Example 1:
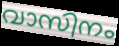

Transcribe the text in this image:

വാസിനം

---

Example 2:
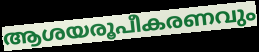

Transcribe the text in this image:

ആശയരൂപീകരണവും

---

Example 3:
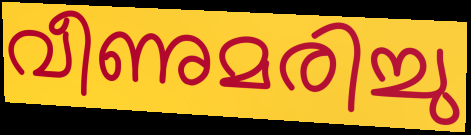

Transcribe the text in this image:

വീണുമരിച്ചു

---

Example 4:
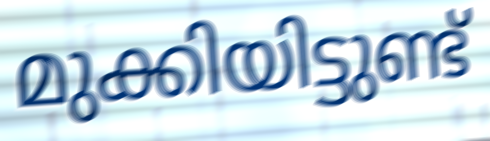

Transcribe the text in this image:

മുക്കിയിട്ടുണ്ട്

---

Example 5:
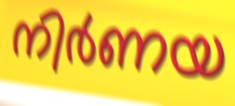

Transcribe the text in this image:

നിർണയ